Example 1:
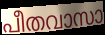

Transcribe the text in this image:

പീതവാസാ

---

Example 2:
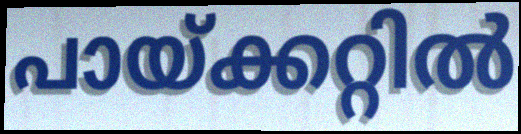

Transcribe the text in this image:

പായ്ക്കറ്റിൽ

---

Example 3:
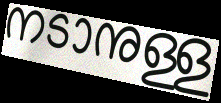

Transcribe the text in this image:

നടാനുള്ള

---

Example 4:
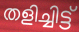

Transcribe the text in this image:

തളിച്ചിട്ട്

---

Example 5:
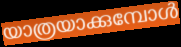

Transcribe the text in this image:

യാത്രയാക്കുമ്പോൾ